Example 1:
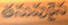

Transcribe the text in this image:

తనువుకైన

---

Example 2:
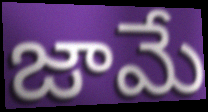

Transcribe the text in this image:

జామే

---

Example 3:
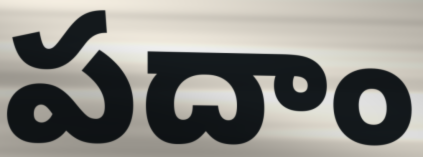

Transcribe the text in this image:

పదాం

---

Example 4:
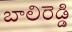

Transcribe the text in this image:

బాలిరెడ్డి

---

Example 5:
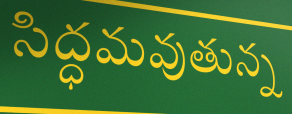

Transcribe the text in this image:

సిద్ధమవుతున్న